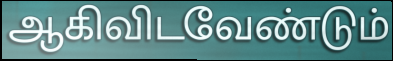
ஆகிவிடவேண்டும்